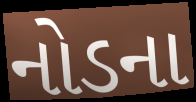
નોડના